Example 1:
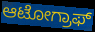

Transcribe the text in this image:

ಆಟೋಗ್ರಾಫ್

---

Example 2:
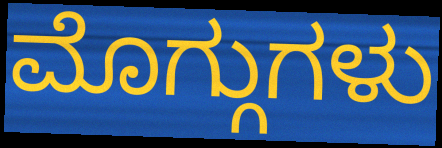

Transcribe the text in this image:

ಮೊಗ್ಗುಗಳು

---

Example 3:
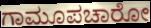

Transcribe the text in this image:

ಗಾಮೂಪಚಾರೋ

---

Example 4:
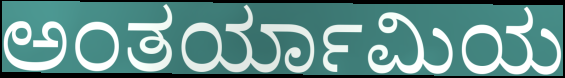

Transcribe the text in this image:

ಅಂತರ್ಯಾಮಿಯ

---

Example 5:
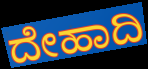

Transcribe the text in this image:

ದೇಹಾದಿ